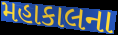
મહાકાલના